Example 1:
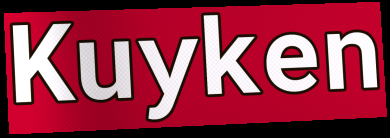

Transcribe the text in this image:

Kuyken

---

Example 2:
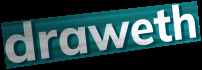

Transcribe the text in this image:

draweth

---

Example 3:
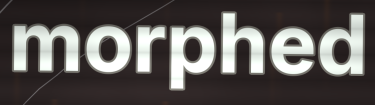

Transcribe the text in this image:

morphed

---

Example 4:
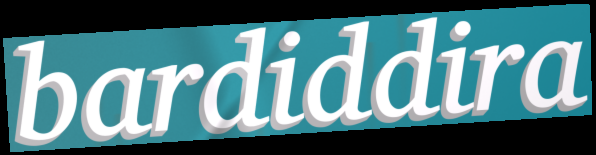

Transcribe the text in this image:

bardiddira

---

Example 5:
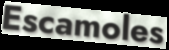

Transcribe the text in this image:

Escamoles